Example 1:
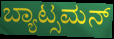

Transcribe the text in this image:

ಬ್ಯಾಟ್ಸಮನ್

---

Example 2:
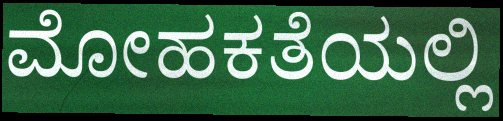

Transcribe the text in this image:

ಮೋಹಕತೆಯಲ್ಲಿ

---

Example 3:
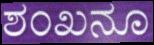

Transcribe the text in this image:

ಶಂಖನೂ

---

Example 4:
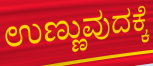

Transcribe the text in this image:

ಉಣ್ಣುವುದಕ್ಕೆ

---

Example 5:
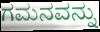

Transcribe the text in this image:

ಗಮನವನ್ನು